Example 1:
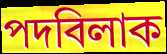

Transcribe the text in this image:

পদবিলাক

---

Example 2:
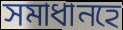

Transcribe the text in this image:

সমাধানহে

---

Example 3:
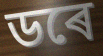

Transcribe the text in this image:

ডৰে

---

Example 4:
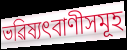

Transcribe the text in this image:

ভৱিষ্যৎবাণীসমূহ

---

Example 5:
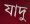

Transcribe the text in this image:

যাদু